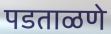
पडताळणे